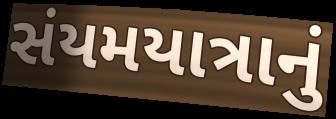
સંયમયાત્રાનું